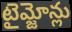
టైమ్జోన్లు